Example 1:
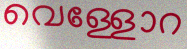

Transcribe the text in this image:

വെള്ളോറ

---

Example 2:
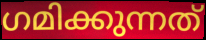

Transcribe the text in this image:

ഗമിക്കുന്നത്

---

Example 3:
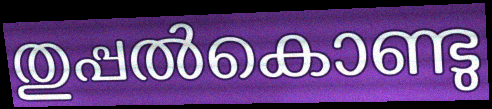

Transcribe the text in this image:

തുപ്പൽകൊണ്ടു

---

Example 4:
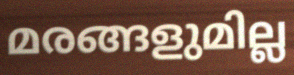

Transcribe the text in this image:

മരങ്ങളുമില്ല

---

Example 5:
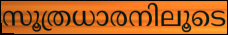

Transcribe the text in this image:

സൂത്രധാരനിലൂടെ